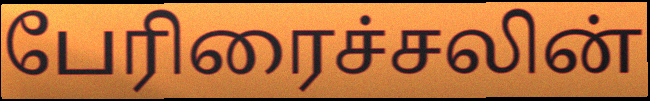
பேரிரைச்சலின்